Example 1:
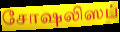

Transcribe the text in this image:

சோஷலிஸப்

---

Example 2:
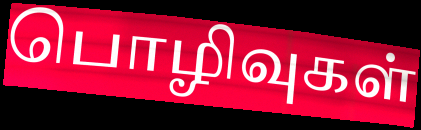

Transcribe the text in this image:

பொழிவுகள்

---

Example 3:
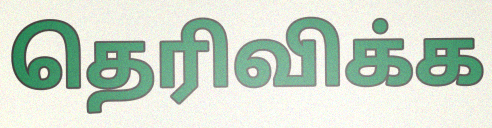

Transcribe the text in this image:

தெரிவிக்க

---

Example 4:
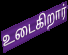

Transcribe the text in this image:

உடைகிறார்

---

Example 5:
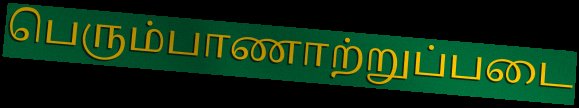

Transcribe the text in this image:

பெரும்பாணாற்றுப்படை